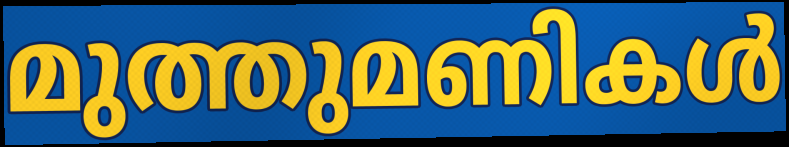
മുത്തുമണികൾ